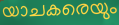
യാചകരെയും